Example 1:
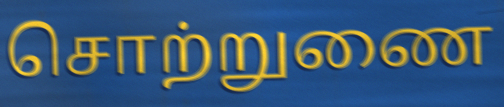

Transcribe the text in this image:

சொற்றுணை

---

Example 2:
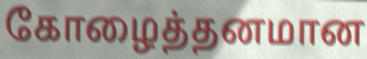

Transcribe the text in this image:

கோழைத்தனமான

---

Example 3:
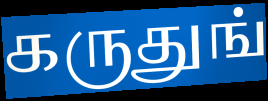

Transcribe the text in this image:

கருதுங்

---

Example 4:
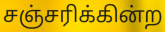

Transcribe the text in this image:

சஞ்சரிக்கின்ற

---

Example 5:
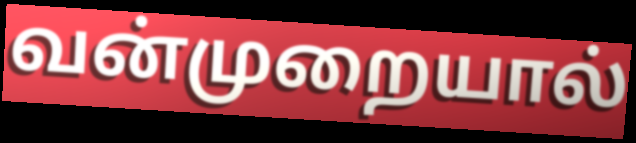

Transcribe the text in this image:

வன்முறையால்